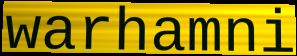
warhamni